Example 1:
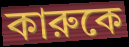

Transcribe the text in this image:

কারুকে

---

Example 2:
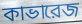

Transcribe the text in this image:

কাভারেজ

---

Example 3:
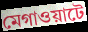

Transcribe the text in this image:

মেগাওয়াটে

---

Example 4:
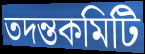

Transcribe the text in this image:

তদন্তকমিটি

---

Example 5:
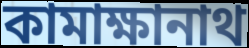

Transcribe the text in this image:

কামাক্ষানাথ